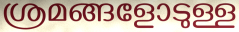
ശ്രമങ്ങളോടുള്ള